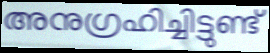
അനുഗ്രഹിച്ചിട്ടുണ്ട്